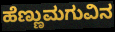
ಹೆಣ್ಣುಮಗುವಿನ